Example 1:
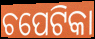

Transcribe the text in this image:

ଚପେଟିକା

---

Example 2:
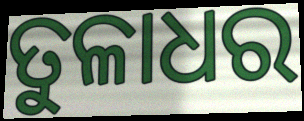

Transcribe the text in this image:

ତୁଳାଧର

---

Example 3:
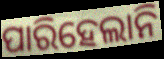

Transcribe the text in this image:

ପାରିହେଲାନି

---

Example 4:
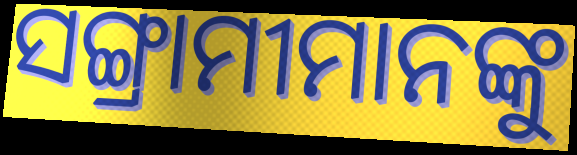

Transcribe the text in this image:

ସଙ୍ଗ୍ରାମୀମାନଙ୍କୁ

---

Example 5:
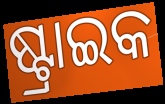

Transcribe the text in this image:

ଷ୍ଟ୍ରାଇକ